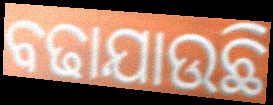
ବଢାଯାଉଛି